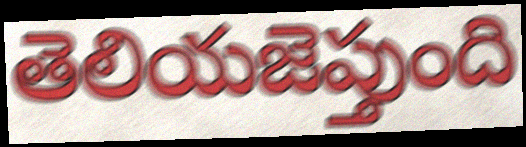
తెలియజెప్తుంది